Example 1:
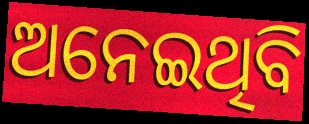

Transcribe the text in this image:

ଅନେଇଥିବି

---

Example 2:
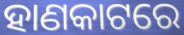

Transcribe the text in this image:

ହାଣକାଟରେ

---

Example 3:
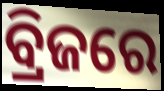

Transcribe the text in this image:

ବ୍ରିଜରେ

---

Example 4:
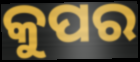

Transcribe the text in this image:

କୁପର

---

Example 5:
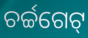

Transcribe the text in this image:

ଚର୍ଚ୍ଚଗେଟ୍